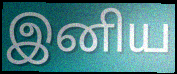
இனிய